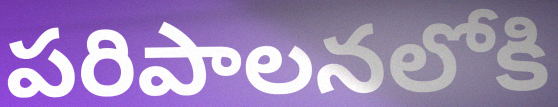
పరిపాలనలోకి